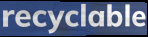
recyclable